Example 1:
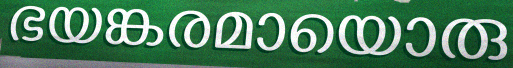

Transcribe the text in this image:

ഭയങ്കരമായൊരു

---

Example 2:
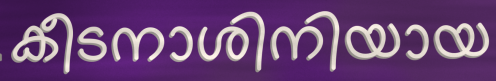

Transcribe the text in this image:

കീടനാശിനിയായ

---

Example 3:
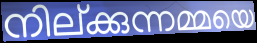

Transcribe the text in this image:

നില്ക്കുന്നമ്മയെ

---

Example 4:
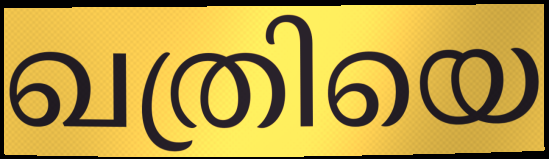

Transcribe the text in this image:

ഖത്രിയെ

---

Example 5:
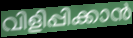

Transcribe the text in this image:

വിളിപ്പിക്കാൻ